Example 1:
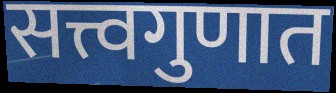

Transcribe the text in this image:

सत्त्वगुणात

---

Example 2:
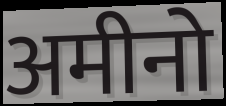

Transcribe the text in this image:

अमीनो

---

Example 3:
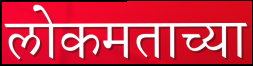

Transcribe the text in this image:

लोकमताच्या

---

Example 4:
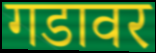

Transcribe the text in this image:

गडावर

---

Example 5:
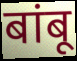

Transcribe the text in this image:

बांबू